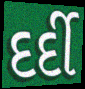
દર્દી